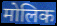
मोलिक